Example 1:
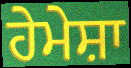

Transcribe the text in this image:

ਹੇਮੇਸ਼ਾ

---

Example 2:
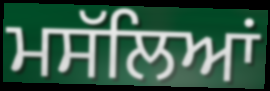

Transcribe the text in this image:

ਮਸੱਲਿਆਂ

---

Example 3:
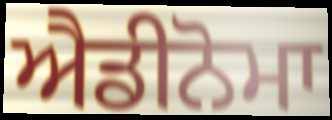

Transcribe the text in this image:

ਐਡੀਨੋਮਾ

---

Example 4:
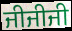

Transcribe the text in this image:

ਜੀਜੀਜੀ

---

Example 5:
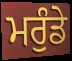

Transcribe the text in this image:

ਮਰੁੰਡੇ